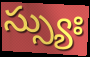
స్స్యుః